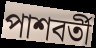
পাশবর্তী